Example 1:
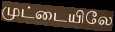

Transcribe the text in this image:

முட்டையிலே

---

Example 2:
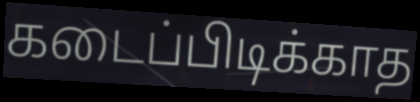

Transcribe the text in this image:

கடைப்பிடிக்காத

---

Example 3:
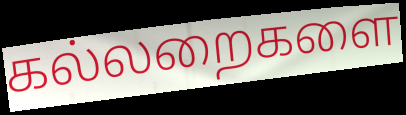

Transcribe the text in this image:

கல்லறைகளை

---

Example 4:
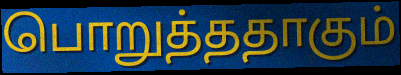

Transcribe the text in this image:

பொறுத்ததாகும்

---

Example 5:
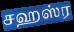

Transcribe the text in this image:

சஹஸ்ர